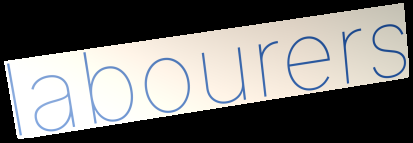
labourers